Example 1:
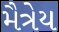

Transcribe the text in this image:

મૈત્રેય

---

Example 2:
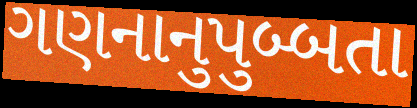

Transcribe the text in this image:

ગણનાનુપુબ્બતા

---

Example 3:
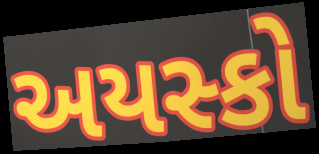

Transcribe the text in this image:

અયસ્કો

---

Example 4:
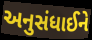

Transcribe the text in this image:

અનુસંધાઈને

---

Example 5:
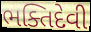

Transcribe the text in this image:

ભક્તિદેવી